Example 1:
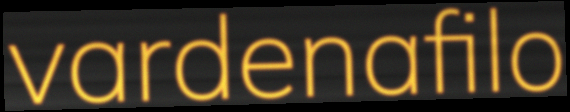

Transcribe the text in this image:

vardenafilo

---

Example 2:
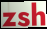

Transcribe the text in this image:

zsh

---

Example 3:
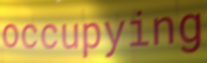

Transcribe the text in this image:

occupying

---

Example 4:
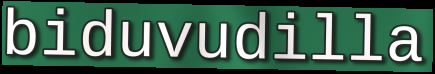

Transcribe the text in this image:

biduvudilla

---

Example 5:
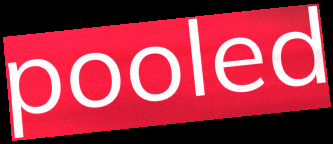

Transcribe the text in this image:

pooled